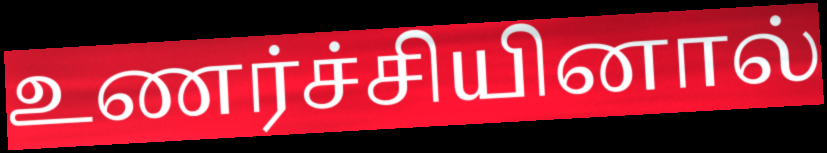
உணர்ச்சியினால்